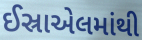
ઈસ્રાએલમાંથી